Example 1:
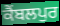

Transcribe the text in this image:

ਕੈਂਬਲਪੁਰ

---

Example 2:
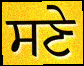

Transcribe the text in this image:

ਸਣੇ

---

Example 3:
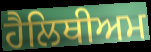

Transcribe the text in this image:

ਹੈਲਿਥੀਅਮ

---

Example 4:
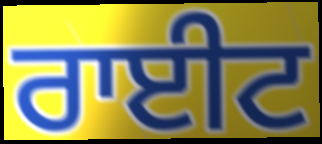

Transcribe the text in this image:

ਰਾਈਟ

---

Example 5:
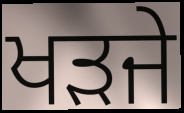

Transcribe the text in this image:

ਖੜਜੇ